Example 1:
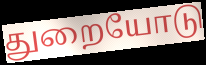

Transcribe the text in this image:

துறையோடு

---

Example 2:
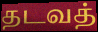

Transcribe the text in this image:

தடவத்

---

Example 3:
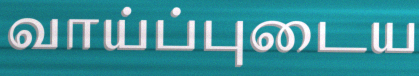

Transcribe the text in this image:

வாய்ப்புடைய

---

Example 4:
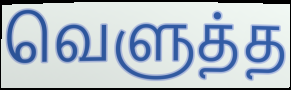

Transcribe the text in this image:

வெளுத்த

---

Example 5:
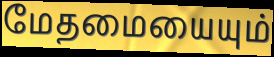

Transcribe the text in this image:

மேதமையையும்